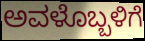
ಅವಳೊಬ್ಬಳಿಗೆ